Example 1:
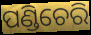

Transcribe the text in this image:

ପଣ୍ଡିଚେରି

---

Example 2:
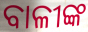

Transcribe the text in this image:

ବାଳୀଙ୍କ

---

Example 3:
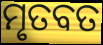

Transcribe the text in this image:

ମୃତବତ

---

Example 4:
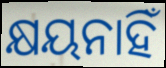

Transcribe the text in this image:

କ୍ଷୟନାହିଁ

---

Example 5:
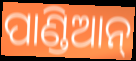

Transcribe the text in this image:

ପାଣ୍ଡିଆନ୍